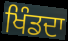
ਖਿੰਡਦਾ